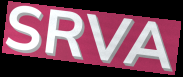
SRVA